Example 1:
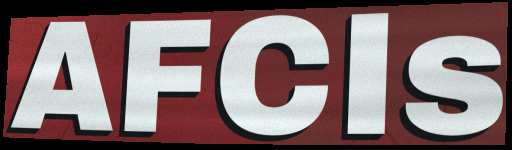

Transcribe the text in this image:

AFCIs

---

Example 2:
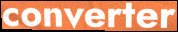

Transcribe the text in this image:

converter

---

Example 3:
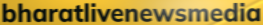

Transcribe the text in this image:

bharatlivenewsmedia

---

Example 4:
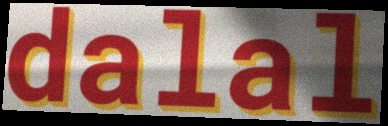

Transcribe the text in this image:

dalal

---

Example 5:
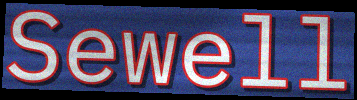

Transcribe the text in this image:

Sewell